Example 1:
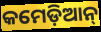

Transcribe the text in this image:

କମେଡ଼ିଆନ୍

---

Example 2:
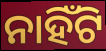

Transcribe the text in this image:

ନାହିଁଟି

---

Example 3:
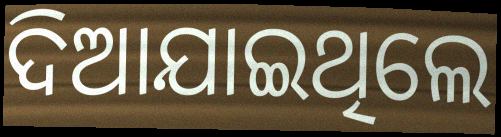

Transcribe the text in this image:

ଦିଆଯାଇଥିଲେ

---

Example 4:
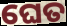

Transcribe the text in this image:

ଘେତ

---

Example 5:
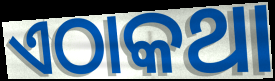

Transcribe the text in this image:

ଏଠାକଥା